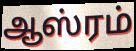
ஆஸ்ரம்